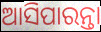
ଆସିପାରନ୍ତା